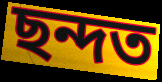
ছন্দত